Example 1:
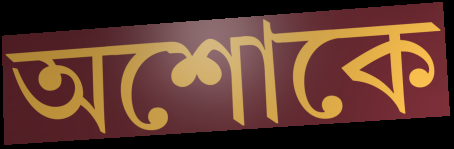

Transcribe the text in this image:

অশোকে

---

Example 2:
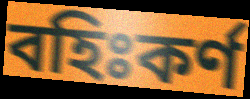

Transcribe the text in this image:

বহিঃকর্ণ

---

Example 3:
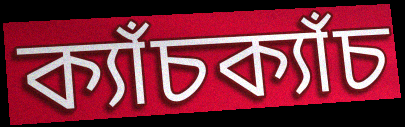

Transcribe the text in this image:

ক্যাঁচক্যাঁচ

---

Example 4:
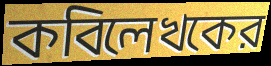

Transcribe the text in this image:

কবিলেখকের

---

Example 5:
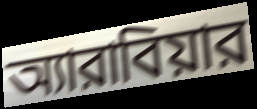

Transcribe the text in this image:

অ্যারাবিয়ার